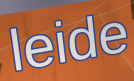
leide